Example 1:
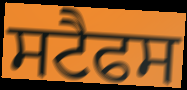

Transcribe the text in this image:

ਸਟੈਫਸ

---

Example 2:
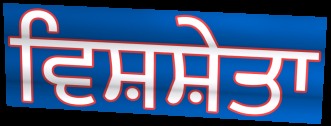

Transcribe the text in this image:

ਵਿਸ਼ਸ਼ੇਤਾ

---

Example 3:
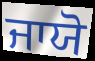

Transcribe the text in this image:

ਜਾਯੋ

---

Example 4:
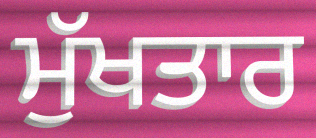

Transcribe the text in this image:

ਮੁੱਖਤਾਰ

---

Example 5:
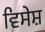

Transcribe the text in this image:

ਵਿਸੇਸ਼